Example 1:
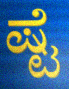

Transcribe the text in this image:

ಷ್ಟೆ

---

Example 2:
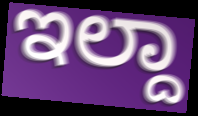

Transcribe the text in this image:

ಇಲ್ದಾ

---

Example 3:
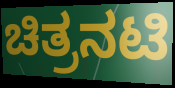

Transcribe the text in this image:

ಚಿತ್ರನಟಿ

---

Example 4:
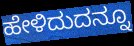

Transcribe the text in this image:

ಹೇಳಿದುದನ್ನೂ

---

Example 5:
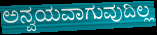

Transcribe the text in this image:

ಅನ್ವಯವಾಗುವುದಿಲ್ಲ